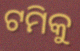
ଟମିକୁ